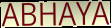
ABHAYA